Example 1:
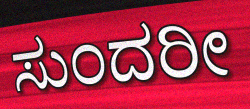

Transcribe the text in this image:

ಸುಂದರೀ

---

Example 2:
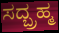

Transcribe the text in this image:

ಸದ್ಬ್ರಹ್ಮ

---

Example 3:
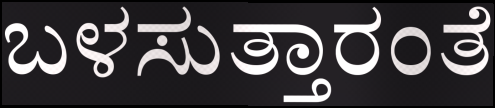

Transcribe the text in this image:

ಬಳಸುತ್ತಾರಂತೆ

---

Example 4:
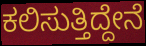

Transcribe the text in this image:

ಕಲಿಸುತ್ತಿದ್ದೇನೆ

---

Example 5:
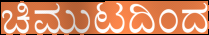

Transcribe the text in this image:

ಚಿಮುಟದಿಂದ